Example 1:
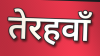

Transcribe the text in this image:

तेरहवाँ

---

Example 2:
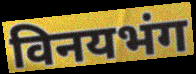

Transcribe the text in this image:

विनयभंग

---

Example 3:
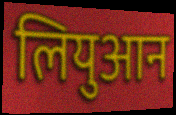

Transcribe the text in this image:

लियुआन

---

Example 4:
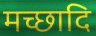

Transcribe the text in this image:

मच्छादि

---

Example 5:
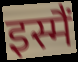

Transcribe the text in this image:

इस्मैं